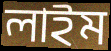
লাইম